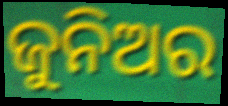
ଜୁନିଅର